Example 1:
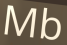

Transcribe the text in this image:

Mb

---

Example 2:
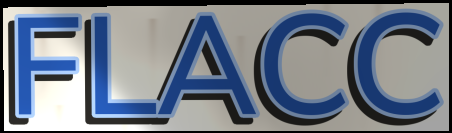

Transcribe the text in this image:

FLACC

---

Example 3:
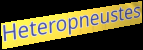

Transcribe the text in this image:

Heteropneustes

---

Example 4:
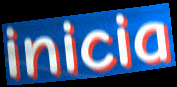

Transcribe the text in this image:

inicia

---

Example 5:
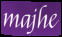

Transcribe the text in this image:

majhe